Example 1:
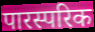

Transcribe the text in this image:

पारस्परिक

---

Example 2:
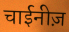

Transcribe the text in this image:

चाईनीज़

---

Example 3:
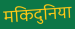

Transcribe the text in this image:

मकिदुनिया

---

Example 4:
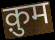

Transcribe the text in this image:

क़ुम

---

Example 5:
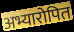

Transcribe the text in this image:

अभ्यारोपित